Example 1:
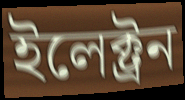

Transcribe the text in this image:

ইলেক্ট্রন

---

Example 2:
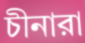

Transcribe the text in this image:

চীনারা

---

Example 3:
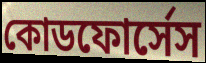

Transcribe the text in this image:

কোডফোর্সেস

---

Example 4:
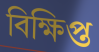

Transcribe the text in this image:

বিক্ষিপ্ত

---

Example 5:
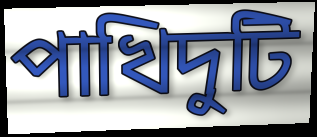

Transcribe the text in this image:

পাখিদুটি